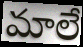
మాలే